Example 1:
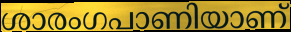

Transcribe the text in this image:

ശാരംഗപാണിയാണ്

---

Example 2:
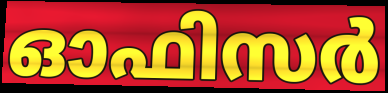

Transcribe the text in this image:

ഓഫിസർ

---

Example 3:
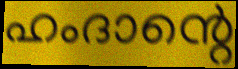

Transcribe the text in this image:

ഹംദാന്റെ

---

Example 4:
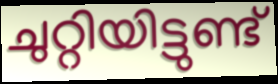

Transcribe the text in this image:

ചുറ്റിയിട്ടുണ്ട്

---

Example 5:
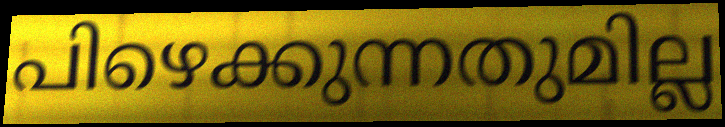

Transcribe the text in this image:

പിഴെക്കുന്നതുമില്ല